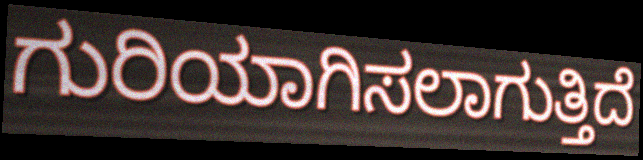
ಗುರಿಯಾಗಿಸಲಾಗುತ್ತಿದೆ